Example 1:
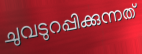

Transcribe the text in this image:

ചുവടുറപ്പിക്കുന്നത്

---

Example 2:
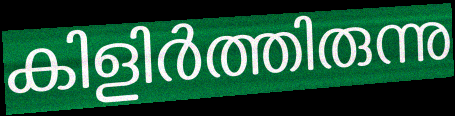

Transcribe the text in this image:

കിളിർത്തിരുന്നു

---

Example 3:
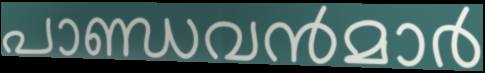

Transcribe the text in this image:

പാണ്ഡവൻമാർ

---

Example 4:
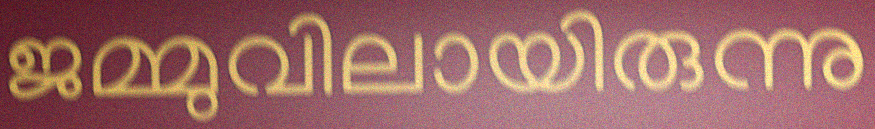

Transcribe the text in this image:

ജമ്മുവിലായിരുന്നു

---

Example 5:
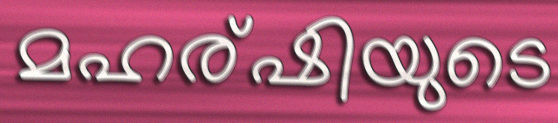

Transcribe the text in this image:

മഹര്ഷിയുടെ